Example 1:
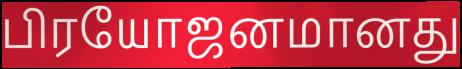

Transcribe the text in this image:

பிரயோஜனமானது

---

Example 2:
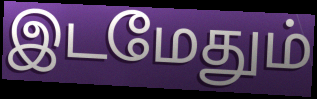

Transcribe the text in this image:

இடமேதும்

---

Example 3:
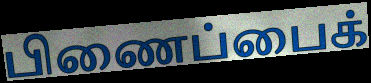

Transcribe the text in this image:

பிணைப்பைக்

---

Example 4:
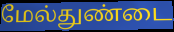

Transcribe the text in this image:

மேல்துண்டை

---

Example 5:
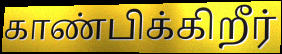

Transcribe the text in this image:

காண்பிக்கிறீர்